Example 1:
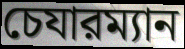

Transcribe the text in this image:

চেযারম্যান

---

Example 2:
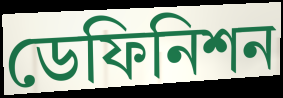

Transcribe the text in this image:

ডেফিনিশন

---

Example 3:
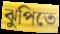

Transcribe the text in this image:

ঝুপিতে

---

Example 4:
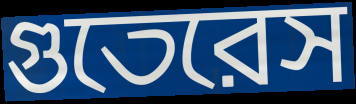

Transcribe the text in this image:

গুতেরেস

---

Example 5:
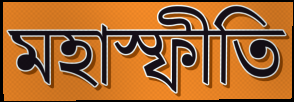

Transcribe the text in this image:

মহাস্ফীতি